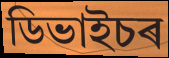
ডিভাইচৰ